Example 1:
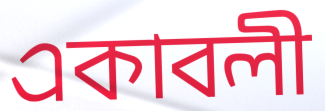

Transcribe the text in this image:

একাবলী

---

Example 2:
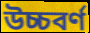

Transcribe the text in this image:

উচ্চবর্ণ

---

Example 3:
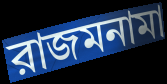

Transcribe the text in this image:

রাজমনামা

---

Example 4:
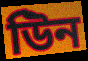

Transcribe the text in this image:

উিন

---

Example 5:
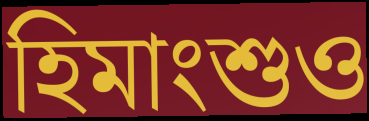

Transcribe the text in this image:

হিমাংশুও